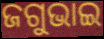
ଜଗୁଭାଇ